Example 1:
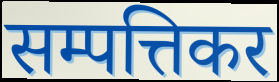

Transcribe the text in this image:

सम्पत्तिकर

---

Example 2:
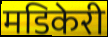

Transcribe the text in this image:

मडिकेरी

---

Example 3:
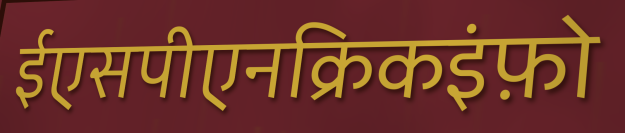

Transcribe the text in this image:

ईएसपीएनक्रिकइंफ़ो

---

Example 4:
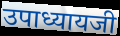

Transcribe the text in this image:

उपाध्यायजी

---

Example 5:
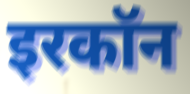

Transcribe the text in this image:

इरकॉन